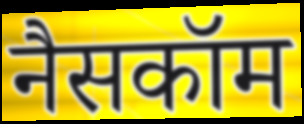
नैसकॉम